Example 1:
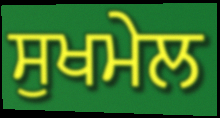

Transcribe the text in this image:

ਸੁਖਮੇਲ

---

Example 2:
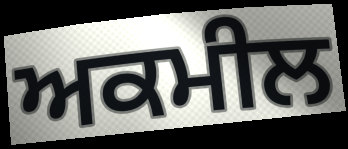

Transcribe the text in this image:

ਅਕਮੀਲ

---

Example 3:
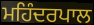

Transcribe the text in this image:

ਮਹਿੰਦਰਪਾਲ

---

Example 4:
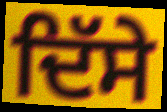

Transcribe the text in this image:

ਦਿੱਸੇ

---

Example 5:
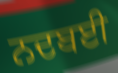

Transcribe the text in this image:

ਨਦਬਈ